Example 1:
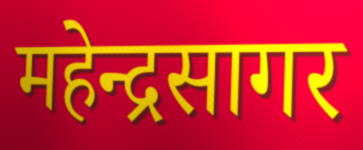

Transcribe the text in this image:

महेन्द्रसागर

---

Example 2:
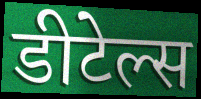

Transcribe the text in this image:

डीटेल्स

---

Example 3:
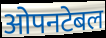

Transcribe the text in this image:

ओपनटेबल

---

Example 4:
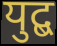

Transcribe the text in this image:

युद्ब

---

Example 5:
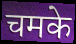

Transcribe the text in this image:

चमके